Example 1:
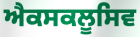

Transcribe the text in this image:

ਐਕਸਕਲੂਸਿਵ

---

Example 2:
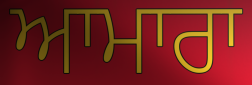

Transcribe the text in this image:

ਆਮਾਰਾ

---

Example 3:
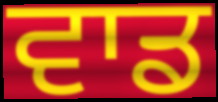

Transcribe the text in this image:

ਵਾਡ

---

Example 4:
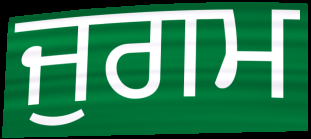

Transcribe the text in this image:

ਜੁਗਮ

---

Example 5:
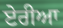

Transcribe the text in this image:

ਏਰੀਆ